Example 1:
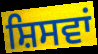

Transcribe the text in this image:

ਸ਼ਿਸਵਾਂ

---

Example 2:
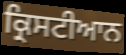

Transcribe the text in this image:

ਕ੍ਰਿਸਟੀਆਨ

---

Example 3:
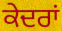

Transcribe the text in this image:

ਕੇਦਰਾਂ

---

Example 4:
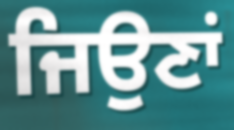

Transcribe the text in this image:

ਜਿਉਣਾਂ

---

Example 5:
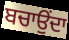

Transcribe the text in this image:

ਬਚਾਉਂਦਾ